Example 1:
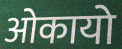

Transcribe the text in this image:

ओकायो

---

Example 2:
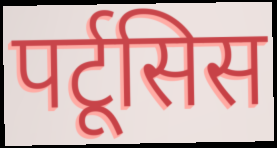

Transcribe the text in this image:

पर्टूसिस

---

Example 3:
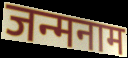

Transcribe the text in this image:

जन्मनाम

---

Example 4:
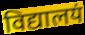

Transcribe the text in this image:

विद्यालयं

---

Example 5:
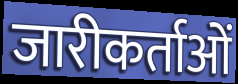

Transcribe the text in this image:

जारीकर्ताओं